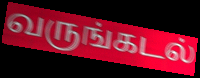
வருங்கடல்